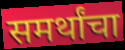
समर्थांचा